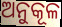
ଅନୁକୂଳ